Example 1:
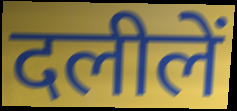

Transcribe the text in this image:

दलीलें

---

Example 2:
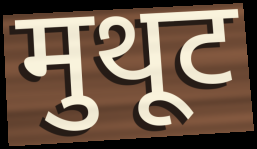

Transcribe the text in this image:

मुथूट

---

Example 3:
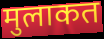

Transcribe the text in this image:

मुलाकत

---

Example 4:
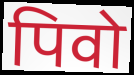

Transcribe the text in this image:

पिवो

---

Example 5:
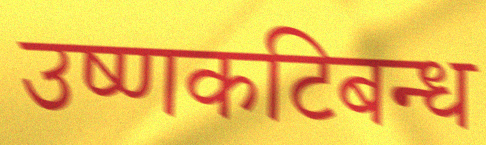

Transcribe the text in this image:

उष्णकटिबन्ध